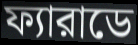
ফ্যারাডে